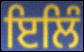
ਇਲਿੰ